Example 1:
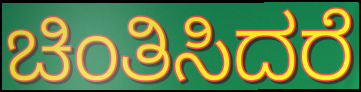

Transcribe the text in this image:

ಚಿಂತಿಸಿದರೆ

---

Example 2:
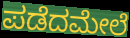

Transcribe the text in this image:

ಪಡೆದಮೇಲೆ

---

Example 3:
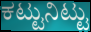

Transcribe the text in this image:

ಕಟ್ಟುನಿಟ್ಟು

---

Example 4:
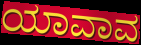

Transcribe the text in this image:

ಯಾವಾವ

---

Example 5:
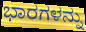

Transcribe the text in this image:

ಭಾರಗಳನ್ನು